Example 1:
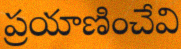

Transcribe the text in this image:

ప్రయాణించేవి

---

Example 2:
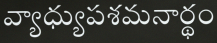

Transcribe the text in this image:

వ్యాధ్యుపశమనార్థం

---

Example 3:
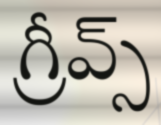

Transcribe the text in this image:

గ్రీవ్స్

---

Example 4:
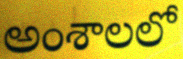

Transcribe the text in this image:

అంశాలలో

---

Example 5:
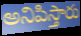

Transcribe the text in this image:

అనిపిస్తారు